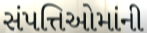
સંપત્તિઓમાંની